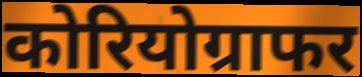
कोरियोग्राफर